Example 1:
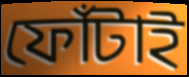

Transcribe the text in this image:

ফোঁটাই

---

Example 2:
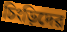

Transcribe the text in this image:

চিংড়িদের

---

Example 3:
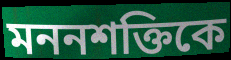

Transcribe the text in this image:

মননশক্তিকে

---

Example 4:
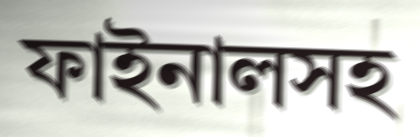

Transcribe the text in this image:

ফাইনালসহ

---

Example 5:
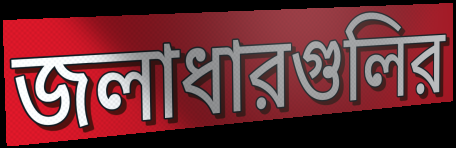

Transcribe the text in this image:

জলাধারগুলির